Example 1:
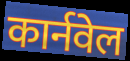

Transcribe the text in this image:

कार्नवेल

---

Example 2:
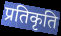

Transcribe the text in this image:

प्रतिकृति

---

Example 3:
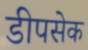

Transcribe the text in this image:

डीपसेक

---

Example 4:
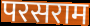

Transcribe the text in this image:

परसराम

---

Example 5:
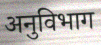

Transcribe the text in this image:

अनुविभाग